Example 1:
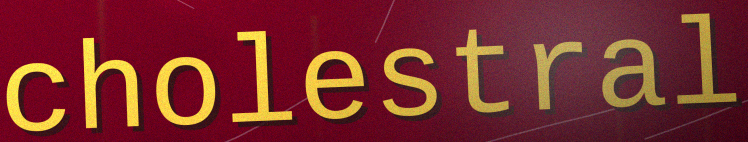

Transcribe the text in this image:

cholestral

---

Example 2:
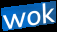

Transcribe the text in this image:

wok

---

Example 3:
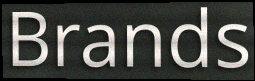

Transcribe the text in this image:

Brands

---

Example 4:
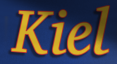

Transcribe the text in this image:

Kiel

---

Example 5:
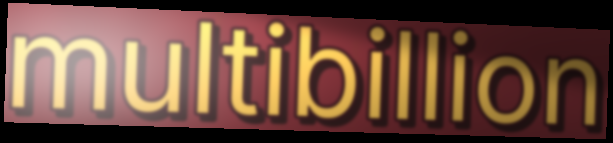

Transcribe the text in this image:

multibillion